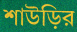
শাউড়ির